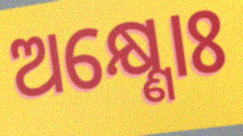
ଅକ୍ଷ୍ଣୋଃ